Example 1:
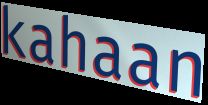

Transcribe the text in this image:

kahaan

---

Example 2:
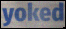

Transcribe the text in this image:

yoked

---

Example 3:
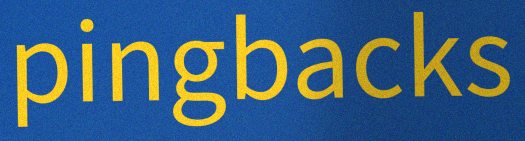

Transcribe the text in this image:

pingbacks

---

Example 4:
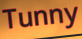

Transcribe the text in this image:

Tunny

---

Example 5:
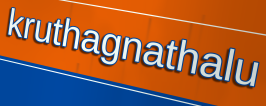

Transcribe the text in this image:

kruthagnathalu